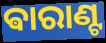
ଵାରାଣ୍ଟ